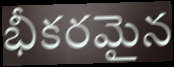
భీకరమైన